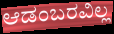
ಆಡಂಬರವಿಲ್ಲ